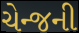
ચેન્જની